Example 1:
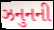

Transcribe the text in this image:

ઝનુનની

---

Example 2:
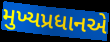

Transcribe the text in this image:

મુખ્યપ્રધાનએ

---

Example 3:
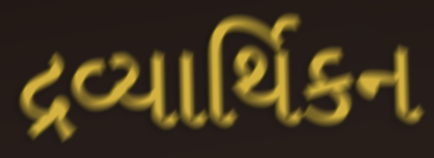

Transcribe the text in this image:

દ્રવ્યાર્થિકન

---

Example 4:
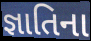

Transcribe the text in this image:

જ્ઞાતિના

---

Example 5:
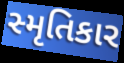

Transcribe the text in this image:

સ્મૃતિકાર